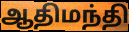
ஆதிமந்தி